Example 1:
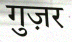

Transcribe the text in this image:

गुज़र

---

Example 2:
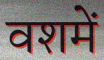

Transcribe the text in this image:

वशमें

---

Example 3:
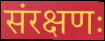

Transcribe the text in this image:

संरक्षणः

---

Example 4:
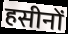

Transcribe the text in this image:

हसीनों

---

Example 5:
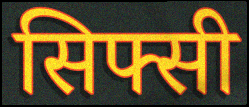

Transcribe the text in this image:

सिफ्सी